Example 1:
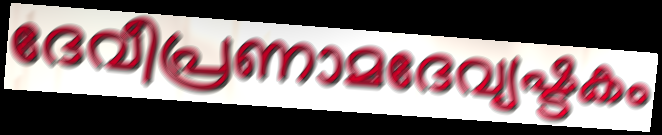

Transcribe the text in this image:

ദേവീപ്രണാമദേവ്യഷ്ടകം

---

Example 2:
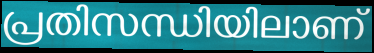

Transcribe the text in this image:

പ്രതിസന്ധിയിലാണ്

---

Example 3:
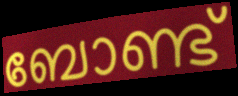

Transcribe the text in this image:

ബോണ്ട്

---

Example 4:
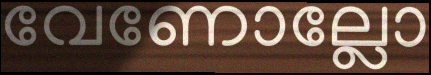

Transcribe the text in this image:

വേണോല്ലോ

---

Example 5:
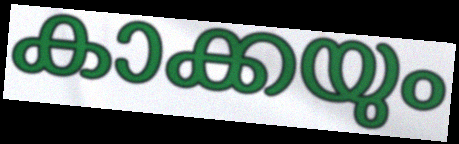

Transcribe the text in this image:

കാക്കയും